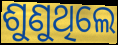
ଶୁଣୁଥିଲେ